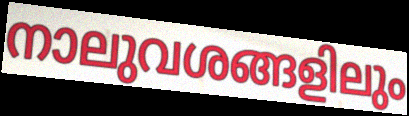
നാലുവശങ്ങളിലും